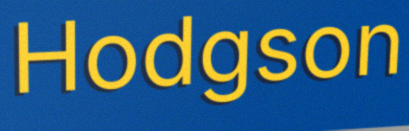
Hodgson